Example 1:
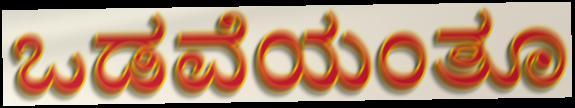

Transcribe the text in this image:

ಒಡವೆಯಂತೂ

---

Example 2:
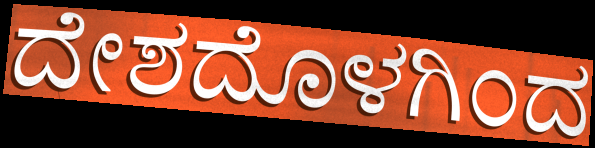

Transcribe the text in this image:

ದೇಶದೊಳಗಿಂದ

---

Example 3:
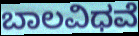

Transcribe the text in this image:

ಬಾಲವಿಧವೆ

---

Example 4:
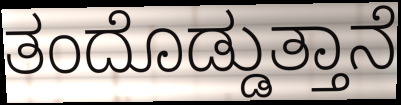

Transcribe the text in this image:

ತಂದೊಡ್ಡುತ್ತಾನೆ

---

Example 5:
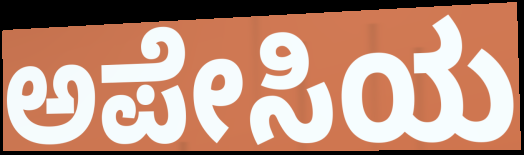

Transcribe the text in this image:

ಅಪೇಸಿಯ